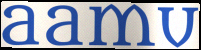
aamu